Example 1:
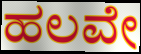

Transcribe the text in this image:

ಹಲವೇ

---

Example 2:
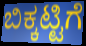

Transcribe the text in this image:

ಬಿಕ್ಕಟ್ಟಿಗೆ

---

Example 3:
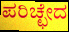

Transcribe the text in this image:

ಪರಿಚ್ಛೇದ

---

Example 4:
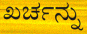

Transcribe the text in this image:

ಖರ್ಚನ್ನು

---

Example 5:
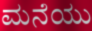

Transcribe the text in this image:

ಮನೆಯು